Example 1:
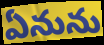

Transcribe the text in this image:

ఏనును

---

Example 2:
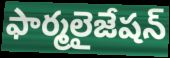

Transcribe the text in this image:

ఫార్మలైజేషన్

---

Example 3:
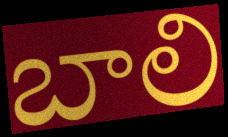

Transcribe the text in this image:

బాలి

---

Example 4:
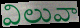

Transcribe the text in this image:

విలువా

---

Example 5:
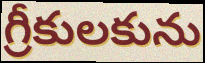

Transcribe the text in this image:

గ్రీకులకును